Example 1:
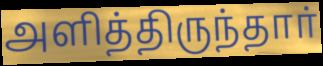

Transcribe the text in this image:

அளித்திருந்தார்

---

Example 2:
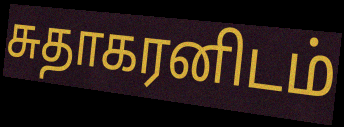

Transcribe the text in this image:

சுதாகரனிடம்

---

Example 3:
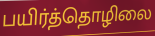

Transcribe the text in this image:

பயிர்த்தொழிலை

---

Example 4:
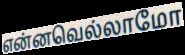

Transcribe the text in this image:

என்னவெல்லாமோ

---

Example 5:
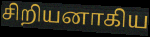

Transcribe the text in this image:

சிறியனாகிய